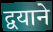
द्वयाने